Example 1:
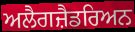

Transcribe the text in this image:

ਅਲੈਗਜ਼ੈਡਰਿਅਨ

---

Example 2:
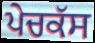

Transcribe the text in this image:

ਪੇਚਕੱਸ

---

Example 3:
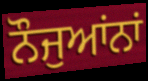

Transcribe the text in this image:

ਨੌਜੁਆਂਨਾਂ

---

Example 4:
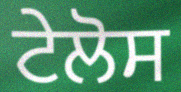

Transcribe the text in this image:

ਟੇਲੋਸ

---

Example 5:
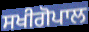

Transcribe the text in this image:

ਸਖੀਗੋਪਾਲ